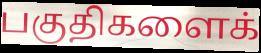
பகுதிகளைக்